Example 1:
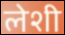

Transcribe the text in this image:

लेशी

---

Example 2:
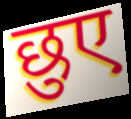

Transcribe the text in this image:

छुए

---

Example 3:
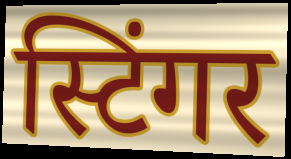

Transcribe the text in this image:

स्टिंगर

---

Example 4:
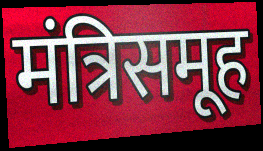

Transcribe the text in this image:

मंत्रिसमूह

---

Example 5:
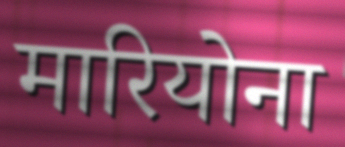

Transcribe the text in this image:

मारियोना